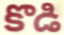
కొడి